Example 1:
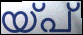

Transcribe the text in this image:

യ്പ്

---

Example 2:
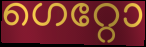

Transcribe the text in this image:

ഗെറ്റോ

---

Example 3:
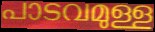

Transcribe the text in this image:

പാടവമുള്ള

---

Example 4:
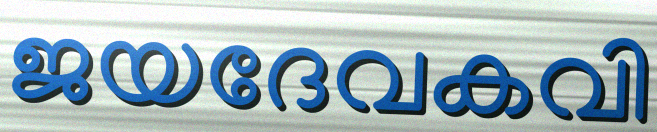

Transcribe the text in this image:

ജയദേവകവി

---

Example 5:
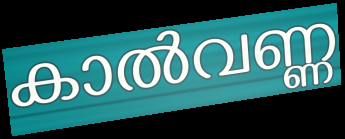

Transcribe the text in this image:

കാൽവണ്ണ